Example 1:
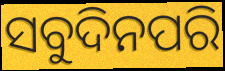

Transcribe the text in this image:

ସବୁଦିନପରି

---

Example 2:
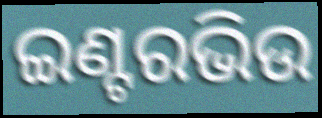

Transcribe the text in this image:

ଇଣ୍ଟରଭିଉ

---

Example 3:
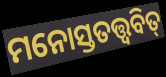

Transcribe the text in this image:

ମନୋସ୍ତତତ୍ତ୍ୱବିତ୍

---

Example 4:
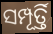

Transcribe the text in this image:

ସମ୍ପୂର୍ତ୍ତି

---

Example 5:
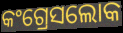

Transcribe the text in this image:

କଂଗ୍ରେସଲୋକ